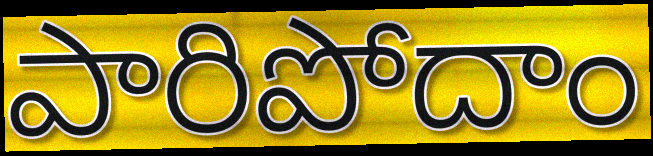
పారిపోదాం